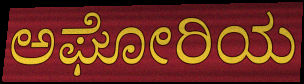
ಅಘೋರಿಯ